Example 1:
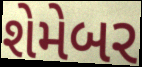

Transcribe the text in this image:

શેમેબર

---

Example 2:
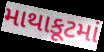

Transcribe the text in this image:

માથાકૂટમાં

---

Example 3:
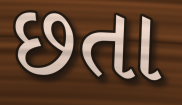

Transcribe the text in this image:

છતા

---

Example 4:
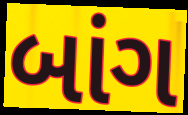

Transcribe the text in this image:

બાંગ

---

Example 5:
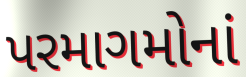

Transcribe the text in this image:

પરમાગમોનાં